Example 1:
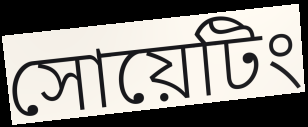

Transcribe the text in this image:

সোয়েটিং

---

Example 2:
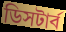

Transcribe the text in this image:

ডিসটার্ব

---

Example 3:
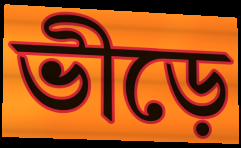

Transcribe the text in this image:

ভীড়ে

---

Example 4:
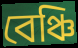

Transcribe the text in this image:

বেঞ্চি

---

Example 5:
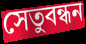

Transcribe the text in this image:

সেতুবন্ধন